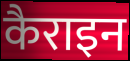
कैराइन